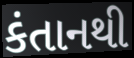
કંતાનથી